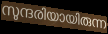
സുന്ദരിയായിരുന്ന